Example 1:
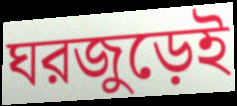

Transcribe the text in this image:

ঘরজুড়েই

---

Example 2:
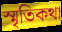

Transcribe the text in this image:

স্মৃতিকথা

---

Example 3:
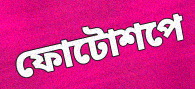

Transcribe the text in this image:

ফোটোশপে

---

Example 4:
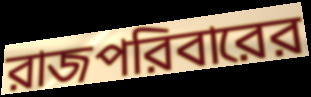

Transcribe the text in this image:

রাজপরিবারের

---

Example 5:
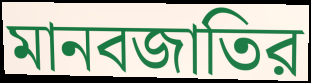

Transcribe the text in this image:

মানবজাতির